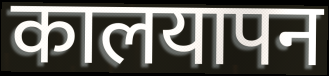
कालयापन